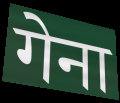
गेना